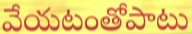
వేయటంతోపాటు